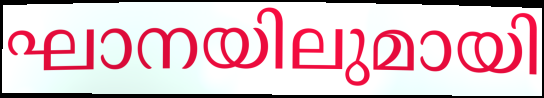
ഘാനയിലുമായി